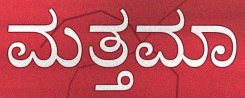
ಮತ್ತಮಾ